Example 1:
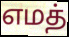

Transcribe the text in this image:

எமத்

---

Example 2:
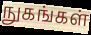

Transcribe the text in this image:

நுகங்கள்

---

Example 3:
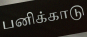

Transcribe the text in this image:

பனிக்காடு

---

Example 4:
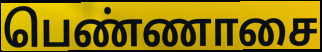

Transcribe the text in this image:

பெண்ணாசை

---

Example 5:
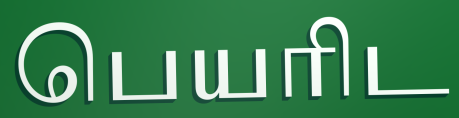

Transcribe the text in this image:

பெயரிட